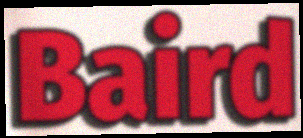
Baird